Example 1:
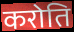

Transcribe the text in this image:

करोति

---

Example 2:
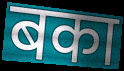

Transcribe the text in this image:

बका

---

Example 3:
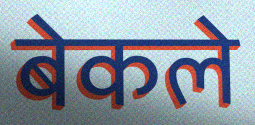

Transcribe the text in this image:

बेकले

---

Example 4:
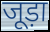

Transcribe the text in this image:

जूड़ा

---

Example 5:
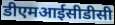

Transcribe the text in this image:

डीएमआईसीडीसी